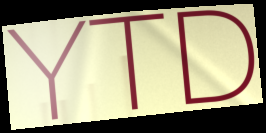
YTD